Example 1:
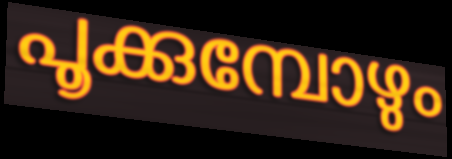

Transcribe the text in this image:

പൂക്കുമ്പോഴും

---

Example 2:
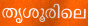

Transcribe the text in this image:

തൃശൂരിലെ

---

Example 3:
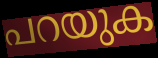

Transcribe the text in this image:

പറയുക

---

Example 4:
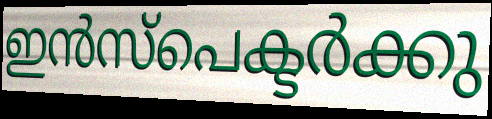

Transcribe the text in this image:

ഇൻസ്പെക്ടർക്കു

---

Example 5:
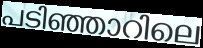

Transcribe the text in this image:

പടിഞ്ഞാറിലെ